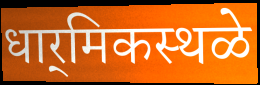
धार्मिकस्थळे